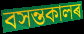
বসন্তকালৰ